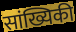
सांख्यिकी